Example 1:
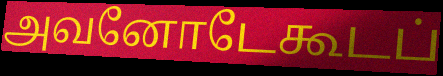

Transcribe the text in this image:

அவனோடேகூடப்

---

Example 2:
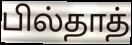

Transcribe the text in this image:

பில்தாத்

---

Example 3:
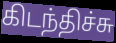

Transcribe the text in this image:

கிடந்திச்சு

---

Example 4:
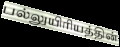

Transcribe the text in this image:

பல்லுயிரியத்தின்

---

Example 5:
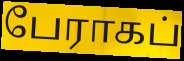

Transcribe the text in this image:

பேராகப்